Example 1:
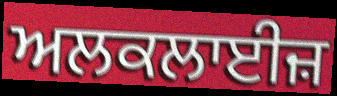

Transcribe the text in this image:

ਅਲਕਲਾਈਜ਼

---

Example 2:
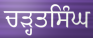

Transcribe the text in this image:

ਚੜ੍ਹਤਸਿੰਘ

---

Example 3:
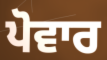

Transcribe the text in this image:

ਪੋਵਾਰ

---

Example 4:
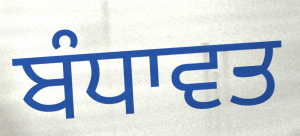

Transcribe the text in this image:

ਬੰਧਾਵਤ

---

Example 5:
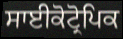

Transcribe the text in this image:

ਸਾਈਕੋਟ੍ਰੋਪਿਕ